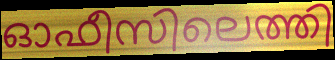
ഓഫീസിലെത്തി